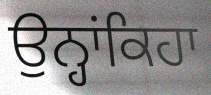
ਉਨ੍ਹਾਂਕਿਹਾ